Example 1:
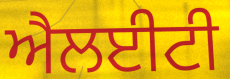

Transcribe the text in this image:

ਐਲਈਟੀ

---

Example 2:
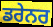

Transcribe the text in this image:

ਡਰੇਨਰ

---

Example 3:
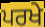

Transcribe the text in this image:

ਪਰਖੇ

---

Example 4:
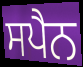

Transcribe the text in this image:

ਸਪੈਨ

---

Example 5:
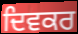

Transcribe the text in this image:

ਦਿਵਕਰ